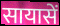
सायासें